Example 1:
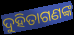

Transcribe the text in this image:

ଦୁହିତାଗଣଙ୍କ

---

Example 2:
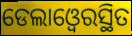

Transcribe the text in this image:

ଡେଲାଓ୍ବେରସ୍ଥିତ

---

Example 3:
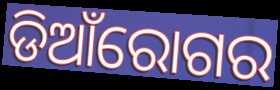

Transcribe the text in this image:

ଡିଆଁରୋଗର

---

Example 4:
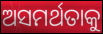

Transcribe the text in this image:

ଅସମର୍ଥତାକୁ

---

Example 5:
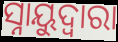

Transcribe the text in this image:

ସ୍ନାୟୁଦ୍ଵାରା